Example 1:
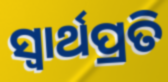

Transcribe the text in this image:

ସ୍ୱାର୍ଥପ୍ରତି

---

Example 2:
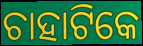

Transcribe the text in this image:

ଚାହାଟିକେ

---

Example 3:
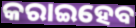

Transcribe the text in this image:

କରାଇହେବ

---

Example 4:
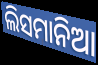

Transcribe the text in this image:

ଲିସମାନିଆ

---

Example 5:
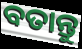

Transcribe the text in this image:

ବତାନ୍ତୁ